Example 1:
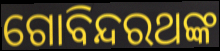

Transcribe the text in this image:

ଗୋବିନ୍ଦରଥଙ୍କ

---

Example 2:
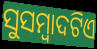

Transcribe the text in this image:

ସୁସମ୍ବାଦଟିଏ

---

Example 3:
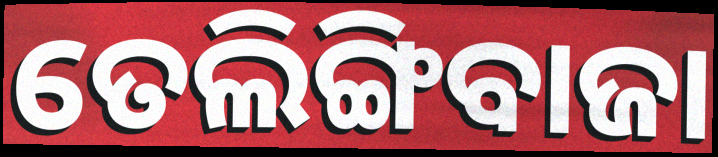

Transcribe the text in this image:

ତେଲିଙ୍ଗିବାଜା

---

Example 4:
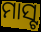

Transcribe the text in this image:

ମାସ୍ଟ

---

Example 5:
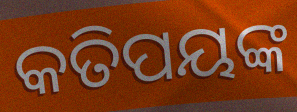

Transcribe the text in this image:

କତିପୟଙ୍କ